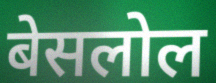
बेसलोल